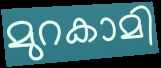
മുറകാമി